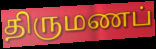
திருமணப்